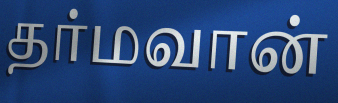
தர்மவான்